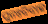
ପୁନଃବିବାହ